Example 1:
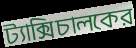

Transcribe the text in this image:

ট্যাক্সিচালকের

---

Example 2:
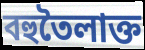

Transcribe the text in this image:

বহুতৈলাক্ত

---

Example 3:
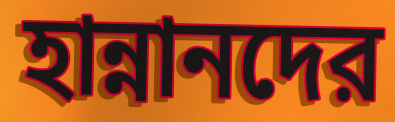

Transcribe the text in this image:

হান্নানদের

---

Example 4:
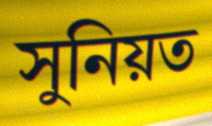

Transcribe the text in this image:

সুনিয়ত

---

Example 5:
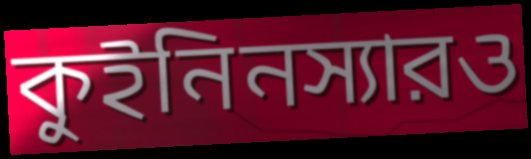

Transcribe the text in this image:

কুইনিনস্যারও